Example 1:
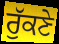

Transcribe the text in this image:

ਰੁੱਕਣੇ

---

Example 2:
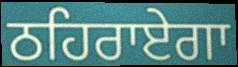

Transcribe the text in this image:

ਠਹਿਰਾਏਗਾ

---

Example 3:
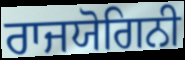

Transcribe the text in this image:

ਰਾਜਯੋਗਿਨੀ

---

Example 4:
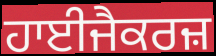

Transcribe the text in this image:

ਹਾਈਜੈਕਰਜ਼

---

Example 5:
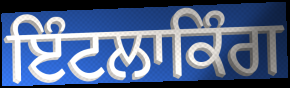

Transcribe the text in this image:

ਇੰਟਲਾਕਿੰਗ